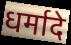
धर्मादे